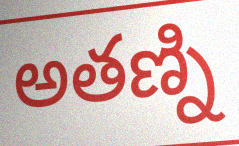
అతణ్ని